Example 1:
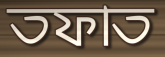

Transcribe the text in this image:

তফাত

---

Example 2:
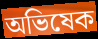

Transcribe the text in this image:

অভিষেক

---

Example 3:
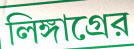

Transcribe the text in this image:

লিঙ্গাগ্রের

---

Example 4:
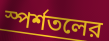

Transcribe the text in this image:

স্পর্শতলের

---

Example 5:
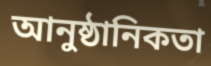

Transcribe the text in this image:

আনুষ্ঠানিকতা